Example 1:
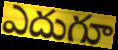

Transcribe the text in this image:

ఎదుగూ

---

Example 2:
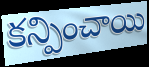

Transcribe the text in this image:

కన్పించాయి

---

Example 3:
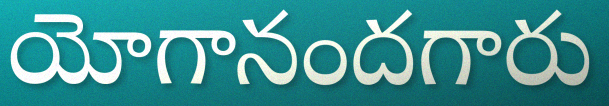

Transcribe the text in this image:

యోగానందగారు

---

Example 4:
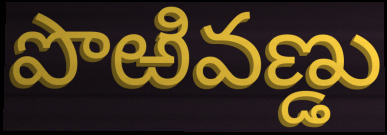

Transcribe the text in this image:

పొఱివణ్డు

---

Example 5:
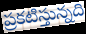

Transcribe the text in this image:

ప్రకటిస్తున్నది